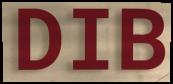
DIB